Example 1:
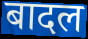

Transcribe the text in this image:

बादल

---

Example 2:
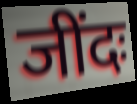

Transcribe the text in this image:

जींदः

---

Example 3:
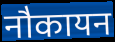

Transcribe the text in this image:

नौकायन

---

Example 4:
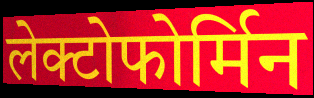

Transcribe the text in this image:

लेक्टोफोर्मिन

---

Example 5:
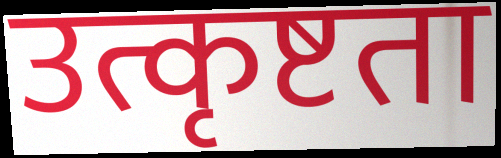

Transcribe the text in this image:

उत्कृष्टता